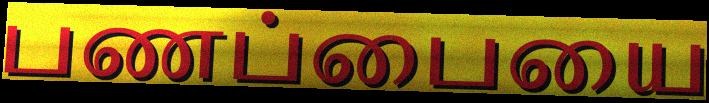
பணப்பையை